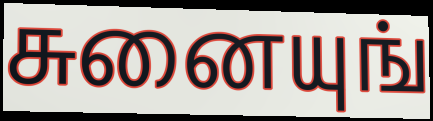
சுனையுங்